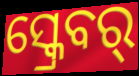
ସ୍କ୍ରେବର୍